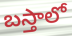
బస్తాలో